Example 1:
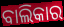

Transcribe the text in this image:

ବାଲିକାର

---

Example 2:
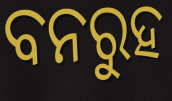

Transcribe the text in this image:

ବନରୁହ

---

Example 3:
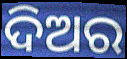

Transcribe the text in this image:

ଦିଅର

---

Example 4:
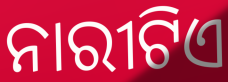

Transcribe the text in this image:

ନାରୀଟିଏ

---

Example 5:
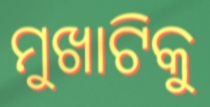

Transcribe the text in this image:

ମୁଖାଟିକୁ